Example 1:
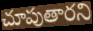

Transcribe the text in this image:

చూపుతారని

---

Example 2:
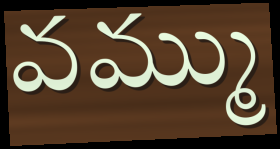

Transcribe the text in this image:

వమ్ము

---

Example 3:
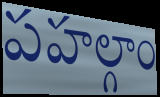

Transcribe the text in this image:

పహల్గాం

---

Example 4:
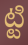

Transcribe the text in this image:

ట్టి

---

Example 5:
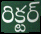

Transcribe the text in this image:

రిక్టర్